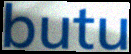
butu